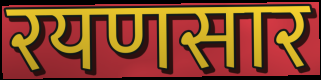
रयणसार